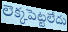
లెక్కపెట్టలేదు